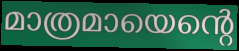
മാത്രമായെന്റെ